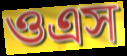
ওএস